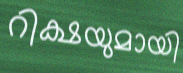
റിക്ഷയുമായി